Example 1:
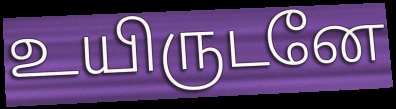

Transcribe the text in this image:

உயிருடனே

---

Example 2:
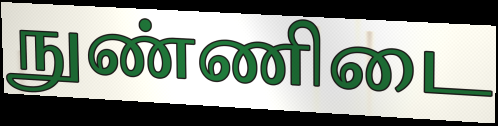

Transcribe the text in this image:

நுண்ணிடை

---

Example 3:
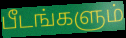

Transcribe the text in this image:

பீடங்களும்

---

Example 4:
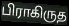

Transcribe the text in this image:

பிராகிருத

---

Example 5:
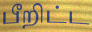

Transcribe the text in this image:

பீறிட்ட